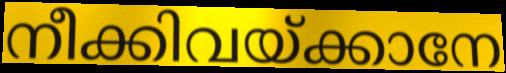
നീക്കിവയ്ക്കാനേ